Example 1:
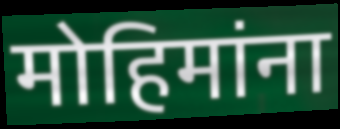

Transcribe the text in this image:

मोहिमांना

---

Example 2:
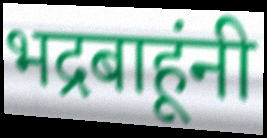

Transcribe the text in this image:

भद्रबाहूंनी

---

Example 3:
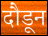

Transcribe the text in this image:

दौडून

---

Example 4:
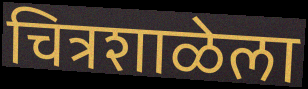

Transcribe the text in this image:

चित्रशाळेला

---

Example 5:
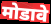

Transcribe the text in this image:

मोडावे